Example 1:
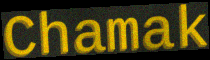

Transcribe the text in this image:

Chamak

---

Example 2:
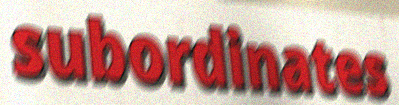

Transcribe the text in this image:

subordinates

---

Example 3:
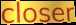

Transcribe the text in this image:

closer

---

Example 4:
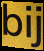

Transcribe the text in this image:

bij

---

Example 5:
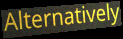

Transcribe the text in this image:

Alternatively